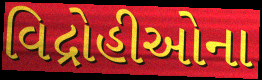
વિદ્રોહીઓના